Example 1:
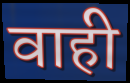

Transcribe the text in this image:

वाही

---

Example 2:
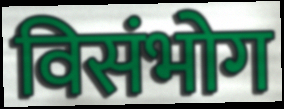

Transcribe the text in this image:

विसंभोग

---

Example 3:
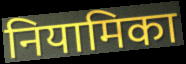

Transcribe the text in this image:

नियामिका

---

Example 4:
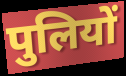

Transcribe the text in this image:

पुलियों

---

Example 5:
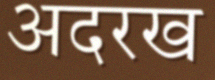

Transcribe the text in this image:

अदरख